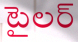
టైలర్